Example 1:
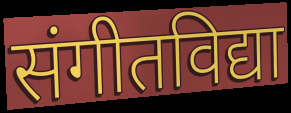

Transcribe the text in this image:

संगीतविद्या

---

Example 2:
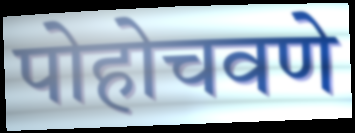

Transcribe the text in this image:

पोहोचवणे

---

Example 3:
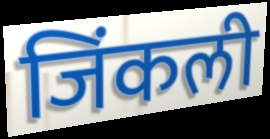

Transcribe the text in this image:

जिंकली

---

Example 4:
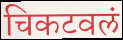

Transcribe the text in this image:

चिकटवलं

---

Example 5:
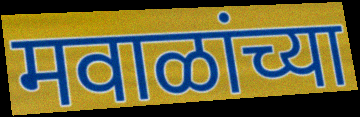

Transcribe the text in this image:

मवाळांच्या